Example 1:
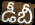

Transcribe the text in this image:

డీబీ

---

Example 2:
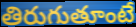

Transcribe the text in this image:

తిరుగుతూంటే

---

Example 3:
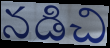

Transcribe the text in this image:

నడిచి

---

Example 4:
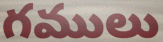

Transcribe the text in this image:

గములు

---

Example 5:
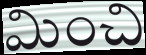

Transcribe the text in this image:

మించి